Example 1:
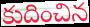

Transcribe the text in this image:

కుదించిన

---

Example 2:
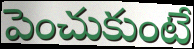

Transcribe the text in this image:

పెంచుకుంటే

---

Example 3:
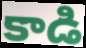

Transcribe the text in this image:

కాడి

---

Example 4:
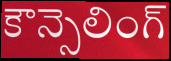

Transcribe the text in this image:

కౌన్సెలింగ్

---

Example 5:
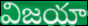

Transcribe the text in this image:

విజయా